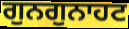
ਗੁਨਗੁਨਾਹਟ